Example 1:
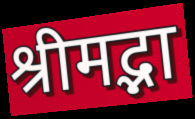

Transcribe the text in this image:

श्रीमद्भा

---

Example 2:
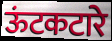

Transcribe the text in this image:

ऊंटकटारे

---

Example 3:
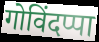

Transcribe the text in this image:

गोविंदप्पा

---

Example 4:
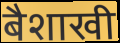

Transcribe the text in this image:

बैशाखी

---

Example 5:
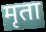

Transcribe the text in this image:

मृता